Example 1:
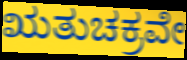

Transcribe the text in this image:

ಋತುಚಕ್ರವೇ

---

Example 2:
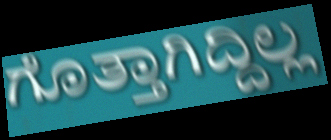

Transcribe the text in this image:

ಗೊತ್ತಾಗಿದ್ದಿಲ್ಲ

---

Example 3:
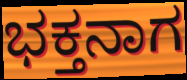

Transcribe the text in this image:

ಭಕ್ತನಾಗ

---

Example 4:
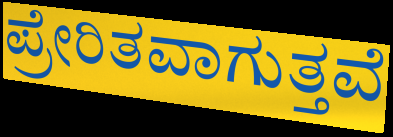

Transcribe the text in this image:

ಪ್ರೇರಿತವಾಗುತ್ತವೆ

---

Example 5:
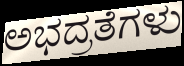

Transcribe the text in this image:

ಅಭದ್ರತೆಗಳು